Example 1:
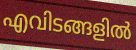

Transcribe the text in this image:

എവിടങ്ങളിൽ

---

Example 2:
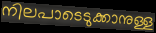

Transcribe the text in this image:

നിലപാടെടുക്കാനുള്ള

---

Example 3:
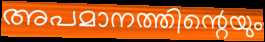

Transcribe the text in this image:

അപമാനത്തിന്റെയും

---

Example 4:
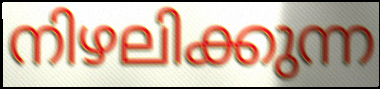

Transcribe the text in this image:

നിഴലിക്കുന്ന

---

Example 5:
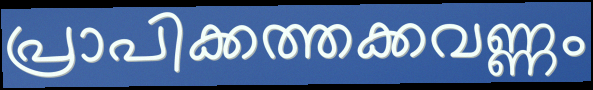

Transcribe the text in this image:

പ്രാപിക്കത്തക്കവണ്ണം